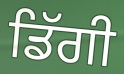
ਡਿੱਗੀ